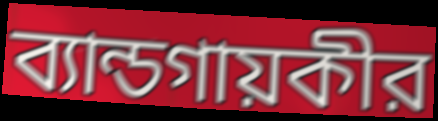
ব্যান্ডগায়কীর